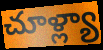
చూళ్ల్యా